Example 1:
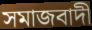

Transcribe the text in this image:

সমাজবাদী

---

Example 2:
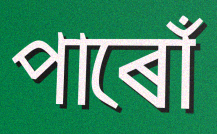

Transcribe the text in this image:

পাৰোঁ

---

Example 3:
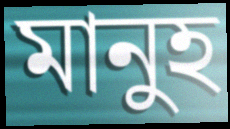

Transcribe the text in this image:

মানুহ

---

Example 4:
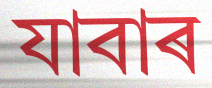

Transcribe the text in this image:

যাবাৰ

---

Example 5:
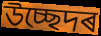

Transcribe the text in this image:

উচ্ছেদৰ